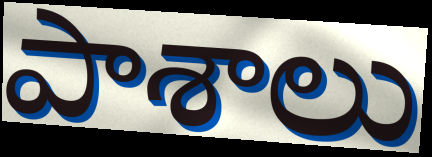
పాశాలు